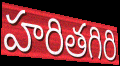
హరితగిరి